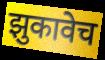
झुकावेच